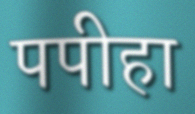
पपीहा